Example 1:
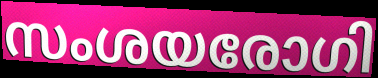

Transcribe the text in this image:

സംശയരോഗി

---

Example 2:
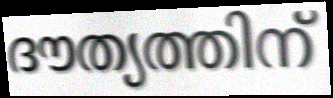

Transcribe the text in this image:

ദൗത്യത്തിന്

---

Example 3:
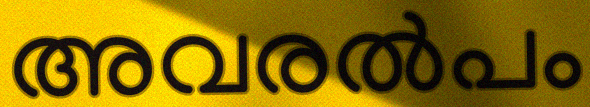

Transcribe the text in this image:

അവരൽപം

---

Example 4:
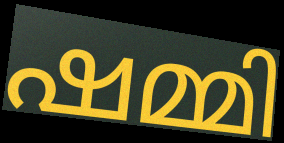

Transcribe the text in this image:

ഷമ്മി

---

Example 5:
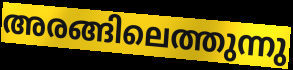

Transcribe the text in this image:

അരങ്ങിലെത്തുന്നു